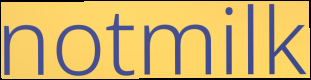
notmilk